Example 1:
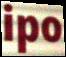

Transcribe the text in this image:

ipo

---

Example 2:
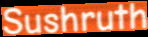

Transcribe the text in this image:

Sushruth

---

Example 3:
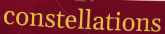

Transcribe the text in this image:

constellations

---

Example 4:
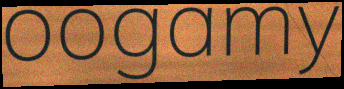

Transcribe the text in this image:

oogamy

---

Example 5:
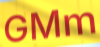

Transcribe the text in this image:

GMm